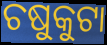
ଚଷୁକୁଟା